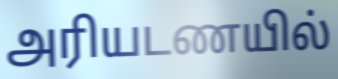
அரியடணயில்